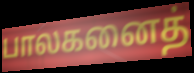
பாலகனைத்